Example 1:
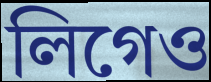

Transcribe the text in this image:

লিগেও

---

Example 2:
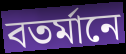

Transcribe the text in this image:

বতর্মানে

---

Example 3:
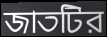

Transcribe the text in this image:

জাতটির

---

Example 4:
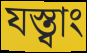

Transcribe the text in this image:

যস্ত্বাং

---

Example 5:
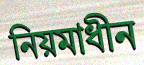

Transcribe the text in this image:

নিয়মাধীন